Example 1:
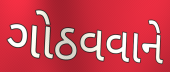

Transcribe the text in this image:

ગોઠવવાને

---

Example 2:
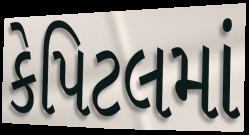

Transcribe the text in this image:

કેપિટલમાં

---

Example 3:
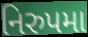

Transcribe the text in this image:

નિરુપમા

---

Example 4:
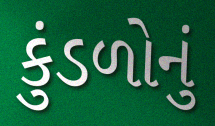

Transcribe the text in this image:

કુંડળોનું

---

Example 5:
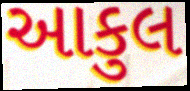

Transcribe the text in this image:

આકુલ